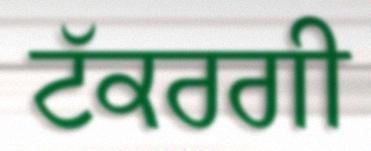
ਟੱਕਰਗੀ